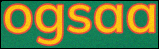
ogsaa